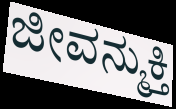
ಜೀವನ್ಮುಕ್ತಿ